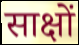
साक्षों